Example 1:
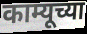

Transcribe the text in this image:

काम्यूच्या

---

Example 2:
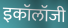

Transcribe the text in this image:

इकॉलॉजी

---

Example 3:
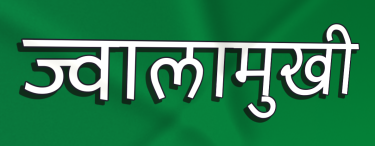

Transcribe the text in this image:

ज्वालामुखी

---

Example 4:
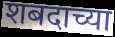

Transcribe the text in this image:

शबदाच्या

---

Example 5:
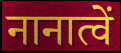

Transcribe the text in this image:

नानात्वें